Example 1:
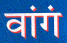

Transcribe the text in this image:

वांगं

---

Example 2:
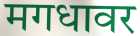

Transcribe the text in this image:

मगधावर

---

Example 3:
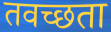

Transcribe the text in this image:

तवच्छता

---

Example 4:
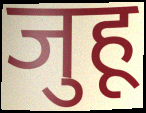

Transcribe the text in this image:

जुहू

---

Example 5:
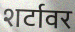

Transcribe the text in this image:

शर्टावर